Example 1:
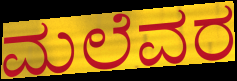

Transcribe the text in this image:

ಮಲೆವರ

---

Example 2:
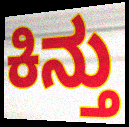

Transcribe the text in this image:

ಕಿನ್ತು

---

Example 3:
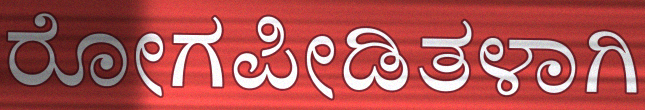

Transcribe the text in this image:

ರೋಗಪೀಡಿತಳಾಗಿ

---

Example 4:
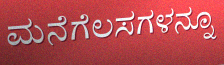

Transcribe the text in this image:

ಮನೆಗೆಲಸಗಳನ್ನೂ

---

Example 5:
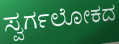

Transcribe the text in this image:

ಸ್ವರ್ಗಲೋಕದ